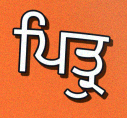
ਪਿਤ੍ਰੁ